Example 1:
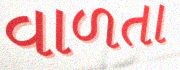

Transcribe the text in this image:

વાળતા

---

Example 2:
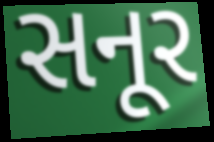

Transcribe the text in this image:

સનૂર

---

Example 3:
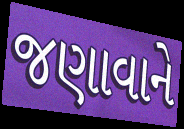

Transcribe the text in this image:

જણાવાને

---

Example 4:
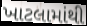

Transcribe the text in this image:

ખાટલામાંથી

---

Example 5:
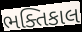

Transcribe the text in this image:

ભક્તિકાલ